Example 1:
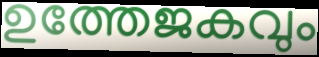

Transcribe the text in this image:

ഉത്തേജകവും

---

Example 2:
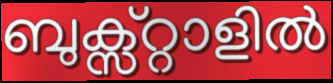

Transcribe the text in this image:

ബുക്സ്റ്റാളിൽ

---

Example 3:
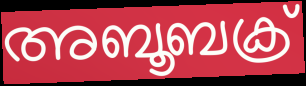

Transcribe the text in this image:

അബൂബക്ര്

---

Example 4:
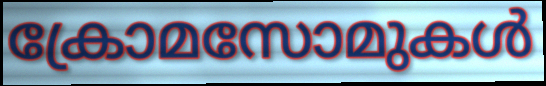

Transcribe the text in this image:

ക്രോമസോമുകൾ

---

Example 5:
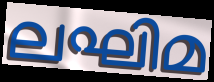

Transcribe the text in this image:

ലഘിമ